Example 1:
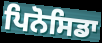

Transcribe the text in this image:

ਪਿਨੋਸਿਡਾ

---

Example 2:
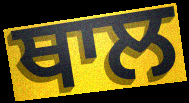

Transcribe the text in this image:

ਥਾਲ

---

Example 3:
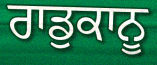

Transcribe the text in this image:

ਰਾਡੁਕਾਨੂ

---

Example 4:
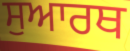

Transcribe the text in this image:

ਸੁਆਰਥ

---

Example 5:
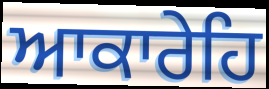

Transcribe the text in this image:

ਆਕਾਰੇਹਿ